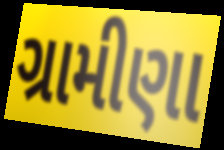
ગ્રામીણા